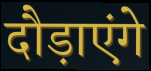
दौड़ाएंगे